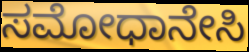
ಸಮೋಧಾನೇಸಿ